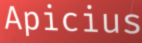
Apicius